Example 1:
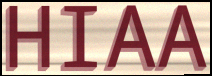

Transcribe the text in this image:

HIAA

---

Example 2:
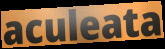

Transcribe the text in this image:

aculeata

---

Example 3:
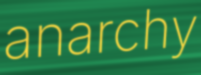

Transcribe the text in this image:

anarchy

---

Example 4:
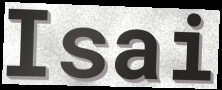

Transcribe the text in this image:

Isai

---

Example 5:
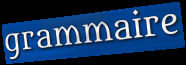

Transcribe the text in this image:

grammaire